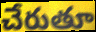
చేరుతూ